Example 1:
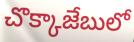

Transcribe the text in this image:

చొక్కాజేబులో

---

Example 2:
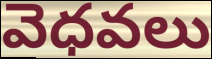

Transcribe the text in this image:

వెధవలు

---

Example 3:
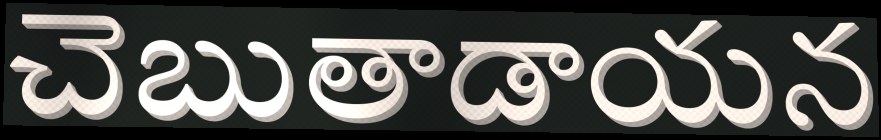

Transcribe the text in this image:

చెబుతాడాయన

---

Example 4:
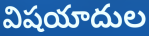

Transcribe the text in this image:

విషయాదుల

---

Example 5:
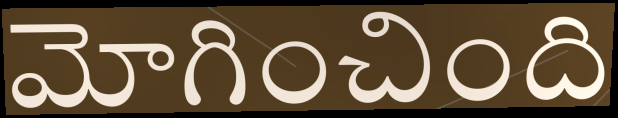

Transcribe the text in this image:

మోగించింది